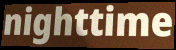
nighttime